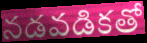
నడవడికతో